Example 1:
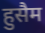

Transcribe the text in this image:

हुसैम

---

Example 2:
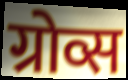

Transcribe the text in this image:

ग्रोव्स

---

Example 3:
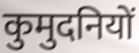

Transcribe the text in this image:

कुमुदनियों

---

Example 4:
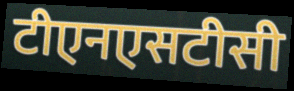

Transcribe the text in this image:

टीएनएसटीसी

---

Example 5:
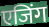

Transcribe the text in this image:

एजिंग